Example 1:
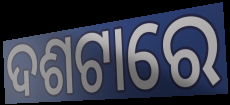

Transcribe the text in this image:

ଦଶଟାରେ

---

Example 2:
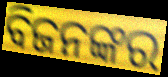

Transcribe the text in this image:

ବିଜନଙ୍କର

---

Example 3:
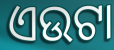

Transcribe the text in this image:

ଏଉଟା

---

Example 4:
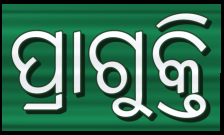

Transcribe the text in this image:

ପ୍ରାଗୁକ୍ତି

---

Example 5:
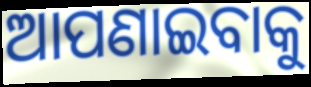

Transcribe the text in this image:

ଆପଣାଇବାକୁ